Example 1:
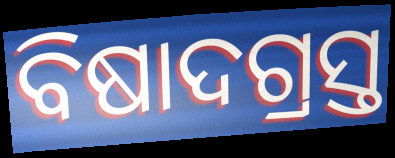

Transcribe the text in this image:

ବିଷାଦଗ୍ରସ୍ତ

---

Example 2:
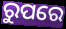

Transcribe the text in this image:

ରୁପରେ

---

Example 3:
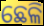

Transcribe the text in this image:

ଛେଳି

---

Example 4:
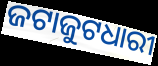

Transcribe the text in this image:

ଜଟାଜୁଟଧାରୀ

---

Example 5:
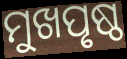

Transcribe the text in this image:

ମୁଖପୃଷ୍ଠ